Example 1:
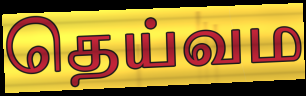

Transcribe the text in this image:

தெய்வம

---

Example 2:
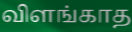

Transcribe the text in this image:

விளங்காத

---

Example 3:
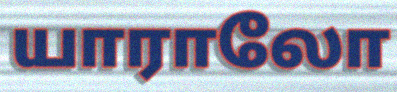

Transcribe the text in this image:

யாராலோ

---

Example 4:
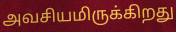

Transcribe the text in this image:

அவசியமிருக்கிறது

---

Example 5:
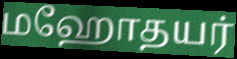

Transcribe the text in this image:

மஹோதயர்